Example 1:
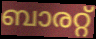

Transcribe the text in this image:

ബാരറ്റ്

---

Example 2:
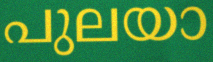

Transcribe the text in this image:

പുലയാ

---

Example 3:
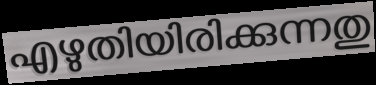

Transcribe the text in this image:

എഴുതിയിരിക്കുന്നതു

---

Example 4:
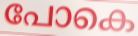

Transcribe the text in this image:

പോകെ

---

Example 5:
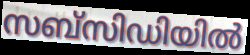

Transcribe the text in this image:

സബ്സിഡിയിൽ